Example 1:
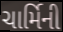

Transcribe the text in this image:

ચાર્મિની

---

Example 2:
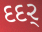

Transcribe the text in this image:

દદર્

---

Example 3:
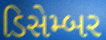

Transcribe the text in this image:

ડિસેમ્બર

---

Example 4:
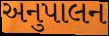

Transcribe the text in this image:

અનુપાલન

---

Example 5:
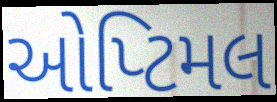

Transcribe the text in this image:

ઓપ્ટિમલ